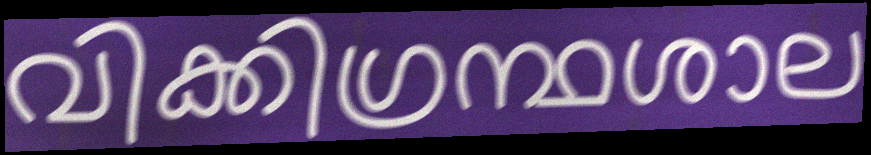
വിക്കിഗ്രന്ഥശാല